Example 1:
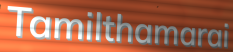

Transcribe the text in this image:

Tamilthamarai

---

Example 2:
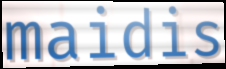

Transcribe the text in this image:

maidis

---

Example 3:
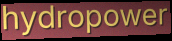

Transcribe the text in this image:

hydropower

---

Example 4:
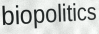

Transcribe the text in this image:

biopolitics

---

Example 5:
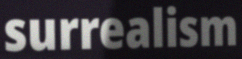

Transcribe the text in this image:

surrealism